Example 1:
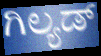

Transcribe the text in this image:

ಗಿಲ್ಯಡ್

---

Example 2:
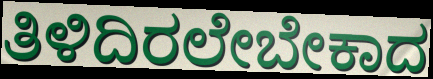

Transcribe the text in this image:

ತಿಳಿದಿರಲೇಬೇಕಾದ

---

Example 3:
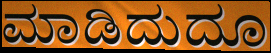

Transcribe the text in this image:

ಮಾಡಿದುದೂ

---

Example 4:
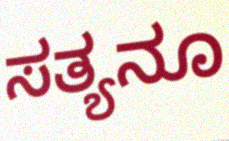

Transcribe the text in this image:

ಸತ್ಯನೂ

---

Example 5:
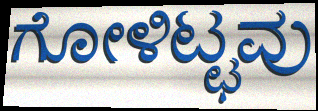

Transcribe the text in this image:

ಗೋಳಿಟ್ಟವು